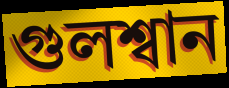
গুলশ্বান